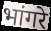
भांगरे